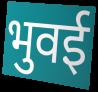
भुवई